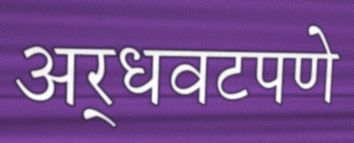
अर्धवटपणे